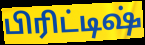
பிரிட்டிஷ்